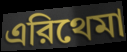
এরিথেমা